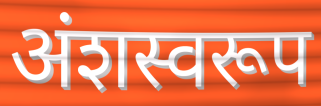
अंशस्वरूप